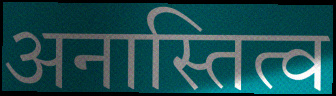
अनास्तित्व